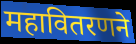
महावितरणने